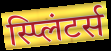
स्प्लिंटर्स